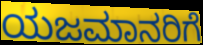
ಯಜಮಾನರಿಗೆ